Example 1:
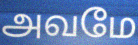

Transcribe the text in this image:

அவமே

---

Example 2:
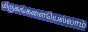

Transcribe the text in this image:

மிருகங்களையெல்லாம்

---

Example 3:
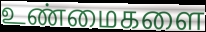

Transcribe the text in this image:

உண்மைகளை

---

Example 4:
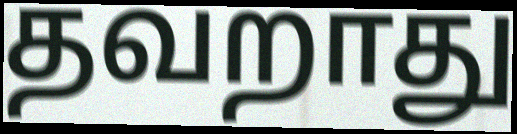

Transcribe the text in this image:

தவறாது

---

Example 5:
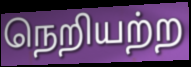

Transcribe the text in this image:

நெறியற்ற